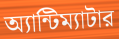
অ্যান্টিম্যাটার